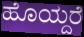
ಹೊಯ್ದರೆ